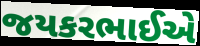
જયકરભાઈએ